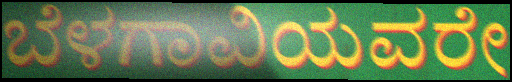
ಬೆಳಗಾವಿಯವರೇ